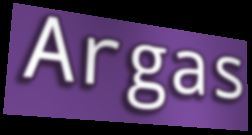
Argas